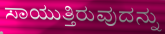
ಸಾಯುತ್ತಿರುವುದನ್ನು